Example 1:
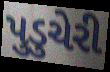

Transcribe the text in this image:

પુડુચેરી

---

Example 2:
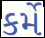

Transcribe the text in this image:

કર્મે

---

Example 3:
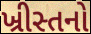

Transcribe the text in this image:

ખ્રીસ્તનો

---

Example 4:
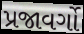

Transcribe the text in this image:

પ્રજાવર્ગો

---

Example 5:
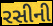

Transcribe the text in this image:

રસીની